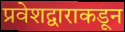
प्रवेशद्वाराकडून